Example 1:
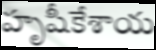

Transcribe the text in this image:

హృషీకేశాయ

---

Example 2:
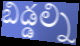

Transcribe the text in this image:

బిడ్డల్ని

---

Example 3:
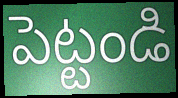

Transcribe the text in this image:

పెట్టండి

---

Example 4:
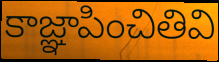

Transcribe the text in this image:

కాజ్ఞాపించితివి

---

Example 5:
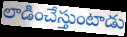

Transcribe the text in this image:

లాడించేస్తుంటాడు